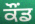
ਕੌਂਡ